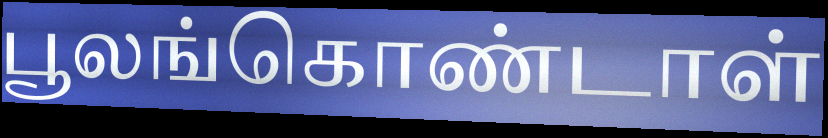
பூலங்கொண்டாள்